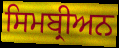
ਸਿਮਬ੍ਰੀਅਨ